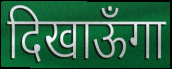
दिखाऊँगा